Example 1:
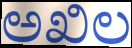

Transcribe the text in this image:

ಅಖಿಲ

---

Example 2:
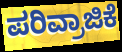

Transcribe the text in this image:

ಪರಿವ್ರಾಜಿಕೆ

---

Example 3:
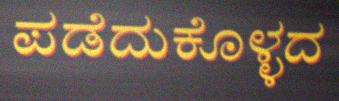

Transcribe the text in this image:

ಪಡೆದುಕೊಳ್ಳದ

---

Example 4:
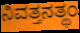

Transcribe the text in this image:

ನಿವತ್ತನತ್ಥಂ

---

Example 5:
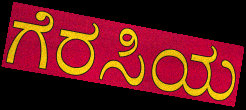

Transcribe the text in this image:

ಗೆರಸಿಯ